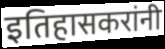
इतिहासकरांनी